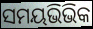
ସମୟଭିଭିକ